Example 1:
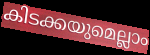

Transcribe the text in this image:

കിടക്കയുമെല്ലാം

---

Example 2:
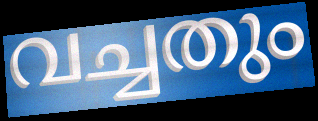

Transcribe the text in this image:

വച്ചതും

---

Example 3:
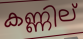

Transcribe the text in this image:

കണ്ണില്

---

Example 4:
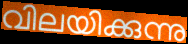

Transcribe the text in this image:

വിലയിക്കുന്നു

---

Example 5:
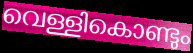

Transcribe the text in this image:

വെള്ളികൊണ്ടും